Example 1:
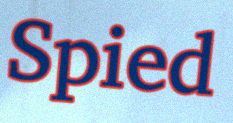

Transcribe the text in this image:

Spied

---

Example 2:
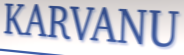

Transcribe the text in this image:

KARVANU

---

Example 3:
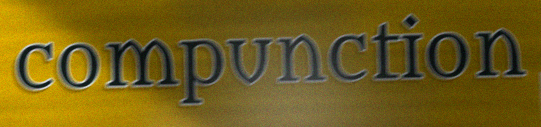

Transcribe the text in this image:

compunction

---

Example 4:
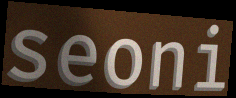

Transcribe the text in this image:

seoni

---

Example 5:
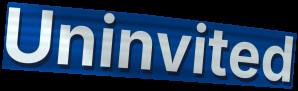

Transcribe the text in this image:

Uninvited